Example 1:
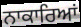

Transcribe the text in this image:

ਨਾਕਾਰਿਆਂ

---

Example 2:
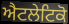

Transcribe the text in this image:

ਐਟਲੇਟਿਕੋ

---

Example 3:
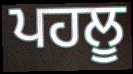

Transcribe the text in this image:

ਪਹਲੂ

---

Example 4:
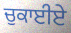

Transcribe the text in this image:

ਚੁਕਾਈਏ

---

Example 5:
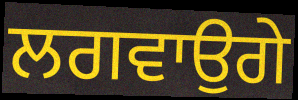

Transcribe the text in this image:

ਲਗਵਾਉਗੇ